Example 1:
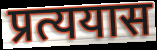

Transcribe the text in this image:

प्रत्ययास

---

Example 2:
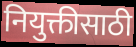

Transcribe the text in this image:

नियुक्तीसाठी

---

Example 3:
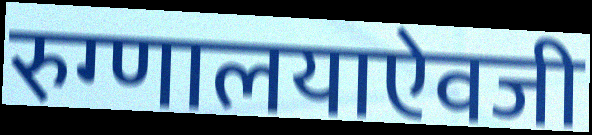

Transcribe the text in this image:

रुग्णालयाऐवजी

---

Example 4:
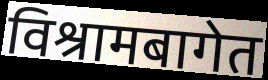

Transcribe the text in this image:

विश्रामबागेत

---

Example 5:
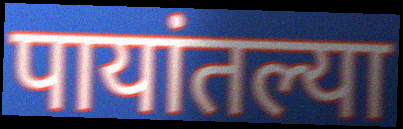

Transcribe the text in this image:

पायांतल्या